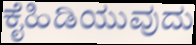
ಕೈಹಿಡಿಯುವುದು